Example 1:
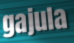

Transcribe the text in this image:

gajula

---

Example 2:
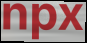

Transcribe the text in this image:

npx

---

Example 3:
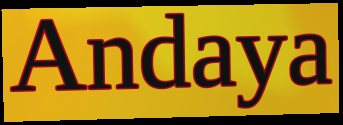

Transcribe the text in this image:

Andaya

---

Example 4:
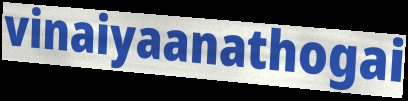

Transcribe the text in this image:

vinaiyaanathogai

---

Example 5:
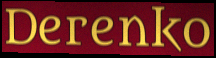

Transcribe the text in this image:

Derenko